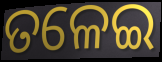
ତଳେଇ